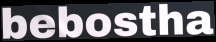
bebostha